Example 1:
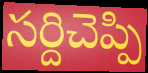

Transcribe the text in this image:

సర్దిచెప్పి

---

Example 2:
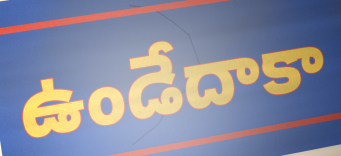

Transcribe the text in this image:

ఉండేదాకా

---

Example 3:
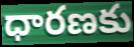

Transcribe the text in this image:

ధారణకు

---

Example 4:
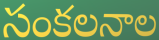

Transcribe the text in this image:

సంకలనాల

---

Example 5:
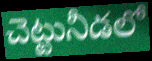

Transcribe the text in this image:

చెట్టునీడలో